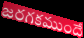
జరగకముందే